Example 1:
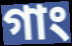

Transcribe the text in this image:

গাং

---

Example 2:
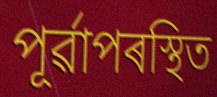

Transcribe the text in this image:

পূৰ্ৱাপৰস্থিত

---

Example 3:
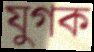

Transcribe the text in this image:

যুগক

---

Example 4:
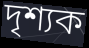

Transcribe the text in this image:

দৃশ্যক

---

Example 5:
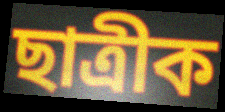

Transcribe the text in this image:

ছাত্ৰীক